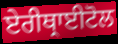
ਏਰੀਥ੍ਰਾਈਟੋਲ